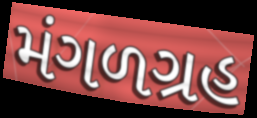
મંગળગ્રહ